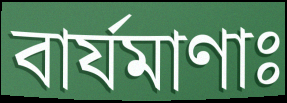
বার্যমাণাঃ